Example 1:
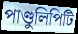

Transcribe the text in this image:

পাণ্ডুলিপিটি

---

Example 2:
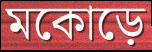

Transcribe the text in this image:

মকোড়ে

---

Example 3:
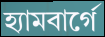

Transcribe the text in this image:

হ্যামবার্গে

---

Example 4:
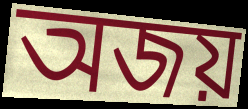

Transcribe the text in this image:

অজয়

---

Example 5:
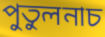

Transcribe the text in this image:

পুতুলনাচ